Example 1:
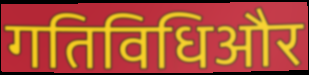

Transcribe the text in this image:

गतिविधिऔर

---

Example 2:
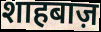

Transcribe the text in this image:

शाहबाज़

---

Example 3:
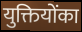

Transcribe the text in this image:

युक्तियोंका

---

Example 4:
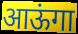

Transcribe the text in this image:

आऊंगा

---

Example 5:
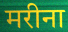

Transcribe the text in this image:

मरीना